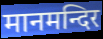
मानमन्दिर